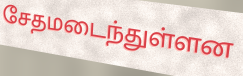
சேதமடைந்துள்ளன